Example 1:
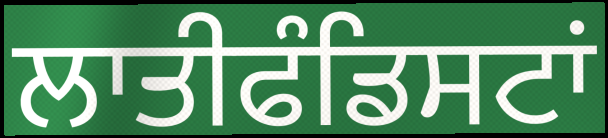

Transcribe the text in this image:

ਲਾਤੀਫੰਡਿਸਟਾਂ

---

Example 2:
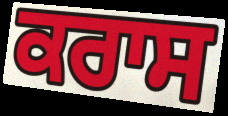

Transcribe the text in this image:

ਕਰਾਸ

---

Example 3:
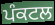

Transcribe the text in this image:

ਪੰਕਟਲ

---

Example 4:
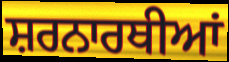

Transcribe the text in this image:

ਸ਼ਰਨਾਰਥੀਆਂ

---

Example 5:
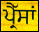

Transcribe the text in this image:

ਪ੍ਰੈੱਸਾਂ